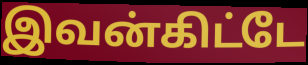
இவன்கிட்டே